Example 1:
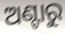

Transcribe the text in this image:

ଅଣ୍ଟାରୁ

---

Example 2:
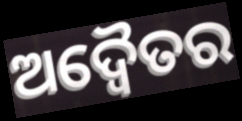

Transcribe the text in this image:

ଅଦ୍ଵୈତର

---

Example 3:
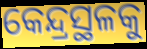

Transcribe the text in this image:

କେନ୍ଦ୍ରସ୍ଥଳକୁ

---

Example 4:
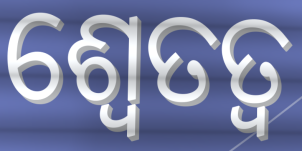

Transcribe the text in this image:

ଶ୍ୱେତତ୍ଵ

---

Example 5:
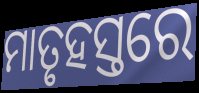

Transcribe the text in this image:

ମାତୃହସ୍ତରେ